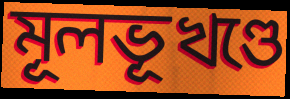
মূলভূখণ্ডে